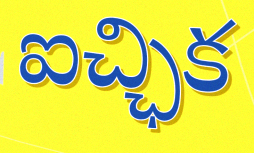
ఐచ్ఛిక